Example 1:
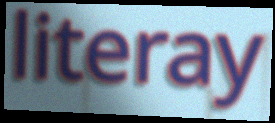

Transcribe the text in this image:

literay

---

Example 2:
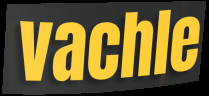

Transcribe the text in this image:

vachle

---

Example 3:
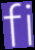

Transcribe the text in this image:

fi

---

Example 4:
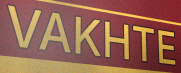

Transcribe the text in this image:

VAKHTE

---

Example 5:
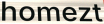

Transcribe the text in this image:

homezt